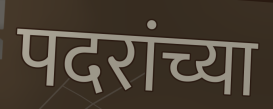
पदरांच्या